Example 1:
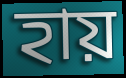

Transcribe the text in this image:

হায়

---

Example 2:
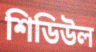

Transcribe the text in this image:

শিডিউল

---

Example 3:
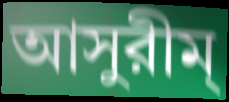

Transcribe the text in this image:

আসুরীম্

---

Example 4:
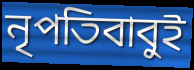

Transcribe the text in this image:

নৃপতিবাবুই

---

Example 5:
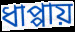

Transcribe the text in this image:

ধাপ্পায়